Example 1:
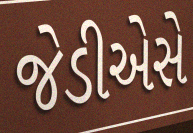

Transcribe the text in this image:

જેડીએસે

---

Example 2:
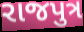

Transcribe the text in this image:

રાજપુત્ર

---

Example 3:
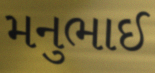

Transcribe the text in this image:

મનુભાઈ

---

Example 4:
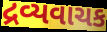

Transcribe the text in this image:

દ્રવ્યવાચક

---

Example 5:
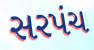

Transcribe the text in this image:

સરપંચ